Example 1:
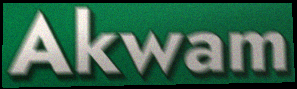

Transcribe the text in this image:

Akwam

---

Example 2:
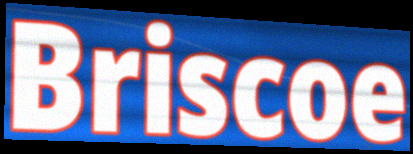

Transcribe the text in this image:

Briscoe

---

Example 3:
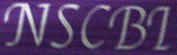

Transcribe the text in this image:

NSCBI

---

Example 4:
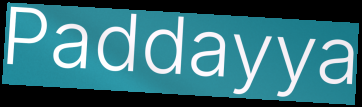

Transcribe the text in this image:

Paddayya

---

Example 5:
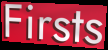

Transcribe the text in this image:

Firsts